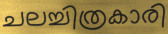
ചലച്ചിത്രകാരി